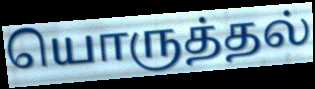
யொருத்தல்